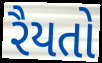
રૈયતો